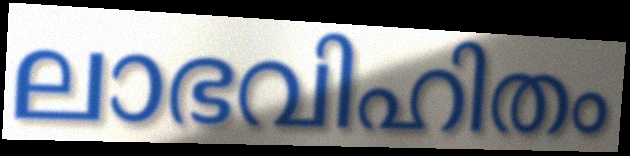
ലാഭവിഹിതം